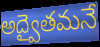
అద్వైతమనే